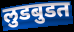
लुडबुडत